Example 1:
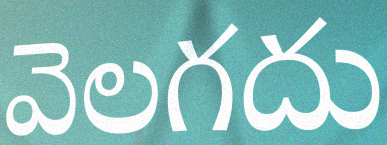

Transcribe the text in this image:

వెలగదు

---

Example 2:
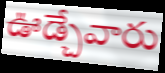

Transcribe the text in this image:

ఊడ్చేవారు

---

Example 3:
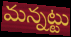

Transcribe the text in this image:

మన్నట్టు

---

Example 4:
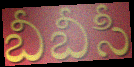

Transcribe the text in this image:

బీబీసీ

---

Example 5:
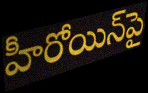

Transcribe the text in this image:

హీరోయిన్‌పై